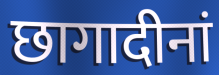
छागादीनां